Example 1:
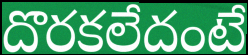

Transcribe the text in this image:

దొరకలేదంటే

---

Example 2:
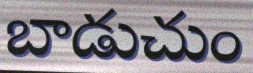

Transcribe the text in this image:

బాడుచుం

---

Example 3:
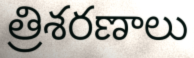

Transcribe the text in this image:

త్రిశరణాలు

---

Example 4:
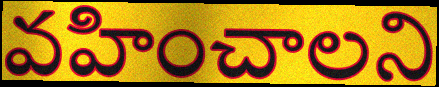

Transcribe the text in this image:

వహించాలని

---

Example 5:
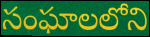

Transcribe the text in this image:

సంఘాలలోని